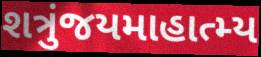
શત્રુંજયમાહાત્મ્ય